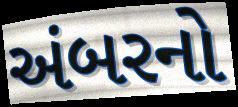
અંબરનો